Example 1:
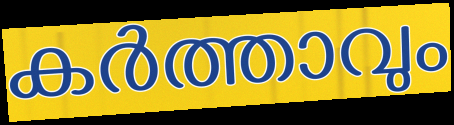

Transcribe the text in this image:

കർത്താവും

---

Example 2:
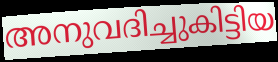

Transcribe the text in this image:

അനുവദിച്ചുകിട്ടിയ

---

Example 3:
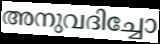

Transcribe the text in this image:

അനുവദിച്ചോ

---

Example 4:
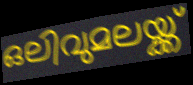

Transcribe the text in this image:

ഒലിവുമലയ്ക്ക്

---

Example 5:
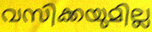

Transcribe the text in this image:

വസിക്കയുമില്ല